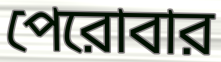
পেরোবার